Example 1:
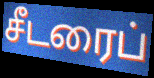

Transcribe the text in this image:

சீடரைப்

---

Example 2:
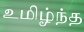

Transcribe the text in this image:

உமிழ்ந்த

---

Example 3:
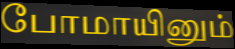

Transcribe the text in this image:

போமாயினும்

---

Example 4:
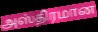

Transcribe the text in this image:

அஸ்திரமான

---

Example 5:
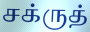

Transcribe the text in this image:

சக்ருத்